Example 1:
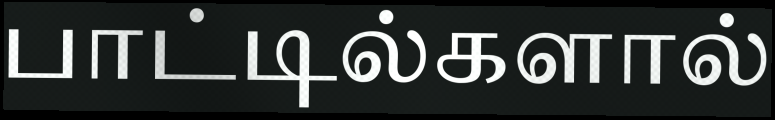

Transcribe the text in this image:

பாட்டில்களால்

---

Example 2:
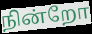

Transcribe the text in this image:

நின்றோ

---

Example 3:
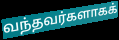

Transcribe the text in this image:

வந்தவர்களாகக்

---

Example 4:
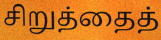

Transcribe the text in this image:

சிறுத்தைத்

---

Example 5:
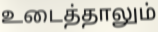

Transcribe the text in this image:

உடைத்தாலும்